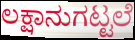
ಲಕ್ಷಾನುಗಟ್ಟಲೆ